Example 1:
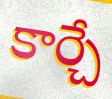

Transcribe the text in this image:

కార్చే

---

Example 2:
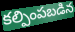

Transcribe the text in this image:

కల్పింపబడిన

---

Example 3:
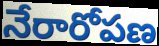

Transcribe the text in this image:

నేరారోపణ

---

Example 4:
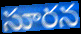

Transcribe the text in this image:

సూరన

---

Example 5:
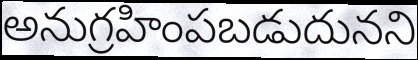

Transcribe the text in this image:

అనుగ్రహింపబడుదునని